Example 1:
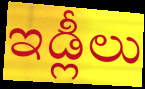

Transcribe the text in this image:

ఇడ్లీలు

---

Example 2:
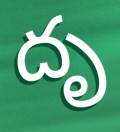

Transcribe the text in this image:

దృ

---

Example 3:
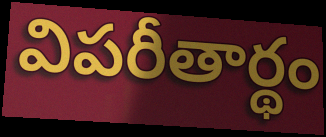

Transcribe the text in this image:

విపరీతార్థం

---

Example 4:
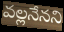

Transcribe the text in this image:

వల్లనేనని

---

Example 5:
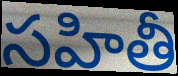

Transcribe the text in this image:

సహితీ